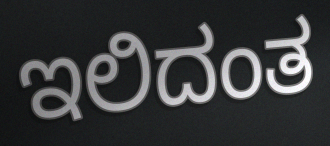
ಇಲಿದಂತ